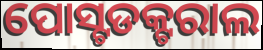
ପୋସ୍ଟଡକ୍ଟରାଲ